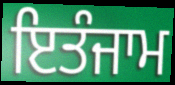
ਇਤੰਜਾਮ